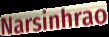
Narsinhrao